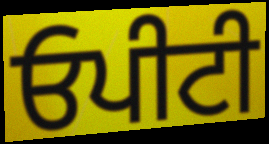
ਓਪੀਟੀ